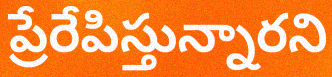
ప్రేరేపిస్తున్నారని